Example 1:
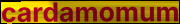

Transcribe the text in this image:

cardamomum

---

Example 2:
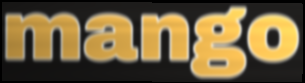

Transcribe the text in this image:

mango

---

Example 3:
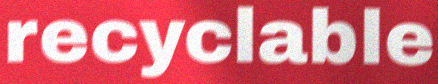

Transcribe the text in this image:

recyclable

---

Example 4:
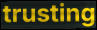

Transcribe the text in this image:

trusting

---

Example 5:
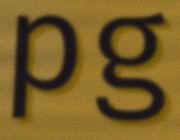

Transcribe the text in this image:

pg